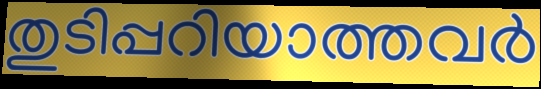
തുടിപ്പറിയാത്തവർ